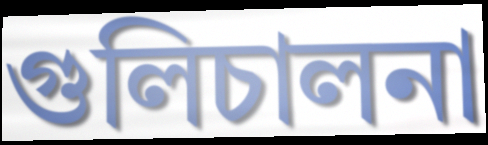
গুলিচালনা